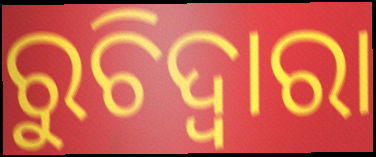
ରୁଚିଦ୍ୱାରା